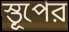
স্তূপের